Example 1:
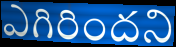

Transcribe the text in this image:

ఎగిరిందని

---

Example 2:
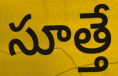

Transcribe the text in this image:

సూత్తే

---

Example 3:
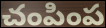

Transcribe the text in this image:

చంపింప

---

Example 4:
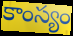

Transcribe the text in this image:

కాంస్యం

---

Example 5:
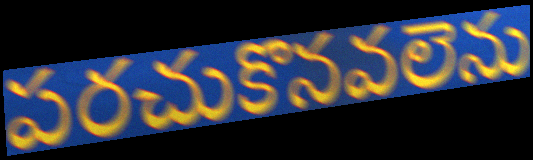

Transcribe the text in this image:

పరచుకొనవలెను